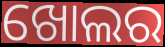
ଖୋଲର